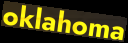
oklahoma